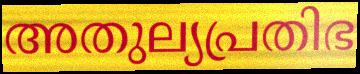
അതുല്യപ്രതിഭ